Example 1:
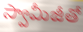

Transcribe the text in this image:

స్వామీజీతో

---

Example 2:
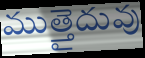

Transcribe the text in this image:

ముత్తైదువు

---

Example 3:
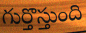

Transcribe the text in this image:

గుర్తొస్తుంది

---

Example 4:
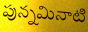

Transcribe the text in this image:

పున్నమినాటి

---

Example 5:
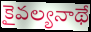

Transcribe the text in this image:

కైవల్యనాథే